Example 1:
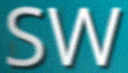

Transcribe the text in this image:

SW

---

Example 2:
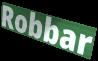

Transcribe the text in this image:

Robbar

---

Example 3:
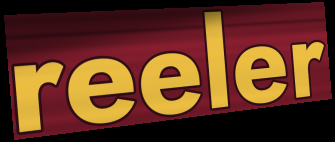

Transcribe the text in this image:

reeler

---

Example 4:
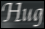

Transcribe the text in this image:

Hug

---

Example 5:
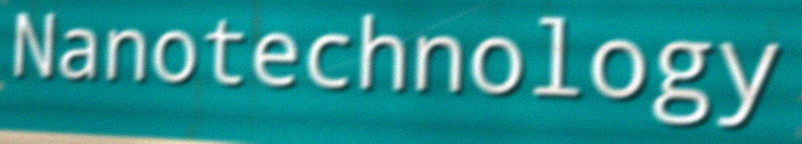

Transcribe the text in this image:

Nanotechnology